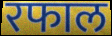
रफाल